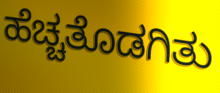
ಹೆಚ್ಚತೊಡಗಿತು